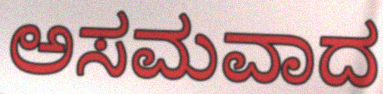
ಅಸಮವಾದ